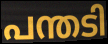
പന്തടി